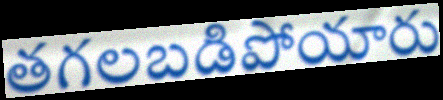
తగలబడిపోయారు